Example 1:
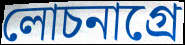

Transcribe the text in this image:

লোচনাগ্রে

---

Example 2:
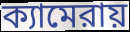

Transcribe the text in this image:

ক্যামেরায়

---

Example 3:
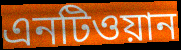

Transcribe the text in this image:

এনটিওয়ান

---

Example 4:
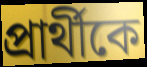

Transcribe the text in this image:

প্রার্থীকে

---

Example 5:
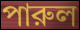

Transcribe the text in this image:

পারুল